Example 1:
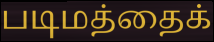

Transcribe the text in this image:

படிமத்தைக்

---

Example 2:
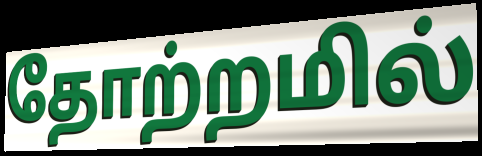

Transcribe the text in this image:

தோற்றமில்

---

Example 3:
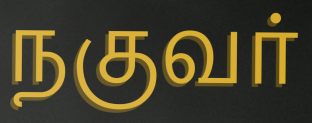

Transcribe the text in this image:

நகுவர்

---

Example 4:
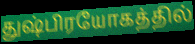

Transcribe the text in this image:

துஷ்பிரயோகத்தில்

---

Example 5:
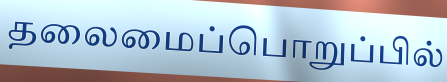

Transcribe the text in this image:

தலைமைப்பொறுப்பில்